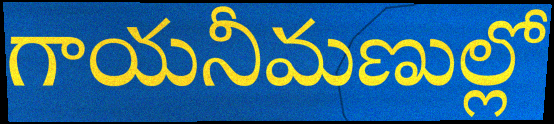
గాయనీమణుల్లో